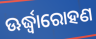
ଊର୍ଦ୍ଧ୍ୱାରୋହଣ